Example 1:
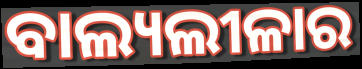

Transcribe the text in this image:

ବାଲ୍ୟଲୀଳାର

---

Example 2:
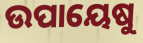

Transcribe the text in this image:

ଉପାୟେଷୁ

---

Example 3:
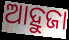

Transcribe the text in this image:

ଆହୁଜା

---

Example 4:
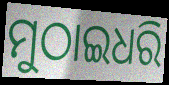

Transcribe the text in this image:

ମୁଠାଇଧରି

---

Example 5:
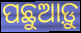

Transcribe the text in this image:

ପଛୁଆଡ଼ୁ